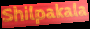
Shilpakala